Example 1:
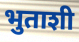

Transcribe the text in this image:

भुताशी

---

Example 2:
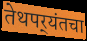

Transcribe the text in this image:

तेथपर्यंतचा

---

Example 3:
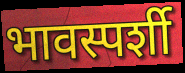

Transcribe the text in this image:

भावस्पर्शी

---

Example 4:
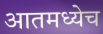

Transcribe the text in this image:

आतमध्येच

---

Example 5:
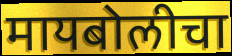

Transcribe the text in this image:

मायबोलीचा